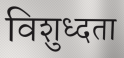
विशुध्दता